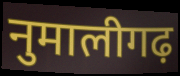
नुमालीगढ़